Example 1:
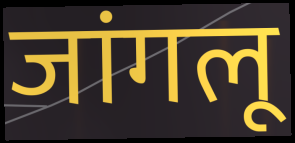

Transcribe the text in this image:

जांगलू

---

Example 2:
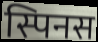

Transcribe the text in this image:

स्पिनस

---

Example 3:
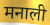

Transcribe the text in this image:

मनाली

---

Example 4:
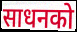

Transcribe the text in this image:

साधनको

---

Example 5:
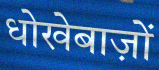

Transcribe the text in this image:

धोखेबाज़ों